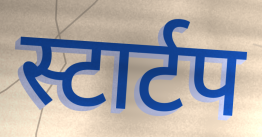
स्टार्टप